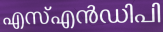
എസ്എൻഡിപി